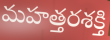
మహత్తరశక్తి